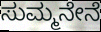
ಸುಮ್ಮನೇನೆ